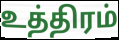
உத்திரம்